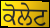
ਕੋਲੇਟ